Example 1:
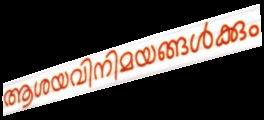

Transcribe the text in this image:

ആശയവിനിമയങ്ങൾക്കും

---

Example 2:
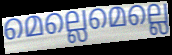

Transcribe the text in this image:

മെല്ലെമെല്ലെ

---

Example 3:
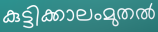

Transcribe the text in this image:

കുട്ടിക്കാലംമുതൽ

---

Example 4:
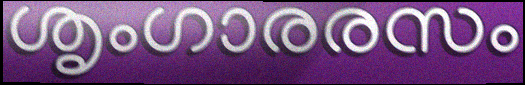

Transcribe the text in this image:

ശൃംഗാരരസം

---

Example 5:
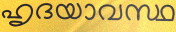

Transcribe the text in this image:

ഹൃദയാവസ്ഥ